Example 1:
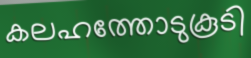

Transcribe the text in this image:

കലഹത്തോടുകൂടി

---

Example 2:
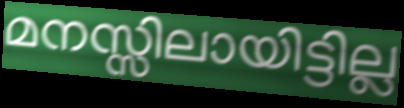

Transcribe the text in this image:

മനസ്സിലായിട്ടില്ല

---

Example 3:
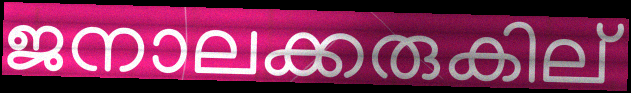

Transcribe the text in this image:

ജനാലക്കരുകില്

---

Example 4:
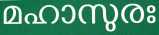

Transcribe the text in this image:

മഹാസുരഃ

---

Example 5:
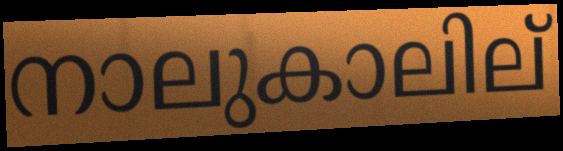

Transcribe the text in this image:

നാലുകാലില്